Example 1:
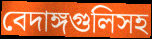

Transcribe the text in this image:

বেদাঙ্গগুলিসহ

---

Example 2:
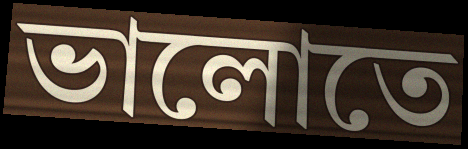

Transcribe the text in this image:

ভালোতে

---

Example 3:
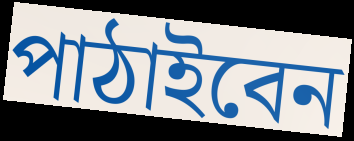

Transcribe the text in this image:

পাঠাইবেন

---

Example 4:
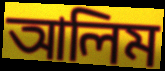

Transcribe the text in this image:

আলিম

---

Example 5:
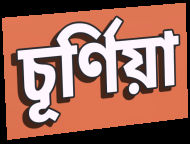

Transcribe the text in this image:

চূর্ণিয়া